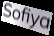
Sofiya